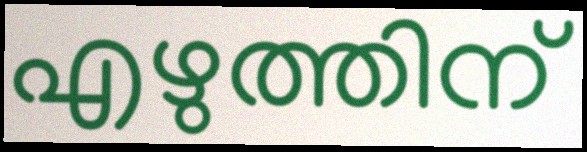
എഴുത്തിന്